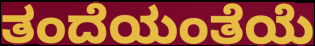
ತಂದೆಯಂತೆಯೆ